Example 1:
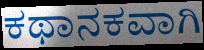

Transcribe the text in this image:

ಕಥಾನಕವಾಗಿ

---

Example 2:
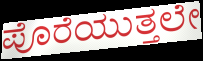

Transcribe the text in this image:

ಪೊರೆಯುತ್ತಲೇ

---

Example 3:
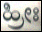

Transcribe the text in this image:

ಹ್ರೀಃ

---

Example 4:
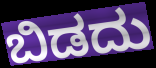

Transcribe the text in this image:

ಬಿಡದು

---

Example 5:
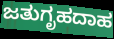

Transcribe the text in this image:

ಜತುಗೃಹದಾಹ